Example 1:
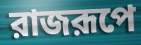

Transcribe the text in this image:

রাজরূপে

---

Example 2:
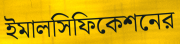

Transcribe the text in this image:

ইমালসিফিকেশনের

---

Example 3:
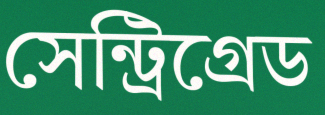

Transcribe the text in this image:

সেন্ট্রিগ্রেড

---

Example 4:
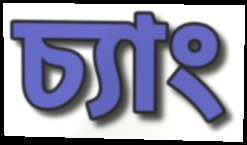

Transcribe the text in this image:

চ্যাং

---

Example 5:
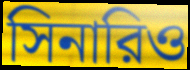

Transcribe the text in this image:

সিনারিও